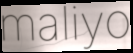
maliyo